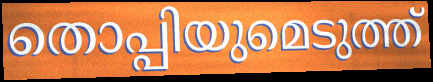
തൊപ്പിയുമെടുത്ത്